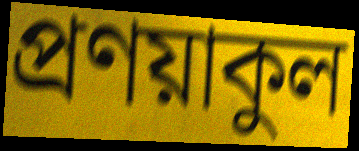
প্রণয়াকুল